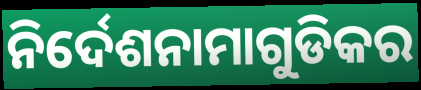
ନିର୍ଦେଶନାମାଗୁଡିକର